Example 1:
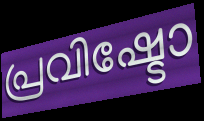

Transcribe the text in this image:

പ്രവിഷ്ടോ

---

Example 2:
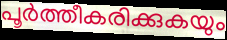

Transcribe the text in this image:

പൂർത്തീകരിക്കുകയും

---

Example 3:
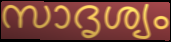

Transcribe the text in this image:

സാദൃശ്യം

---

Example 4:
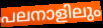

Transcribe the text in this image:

പലനാളിലും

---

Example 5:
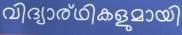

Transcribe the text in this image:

വിദ്യാര്ഥികളുമായി